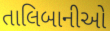
તાલિબાનીઓ